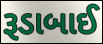
રૂડાબાઈ